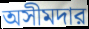
অসীমদার